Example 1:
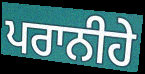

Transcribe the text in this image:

ਪਰਾਨੀਹੇ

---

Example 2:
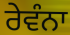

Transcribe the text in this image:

ਰੇਵੰਨਾ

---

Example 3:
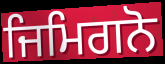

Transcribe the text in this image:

ਜਿਮਿਗਨੋ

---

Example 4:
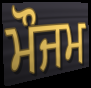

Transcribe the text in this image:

ਮੌਜਮ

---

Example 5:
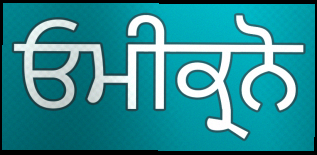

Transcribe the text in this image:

ਓਮੀਕ੍ਰਨੋ